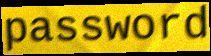
password